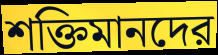
শক্তিমানদের